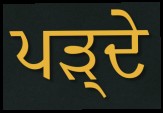
ਪੜ੍ਦੇ